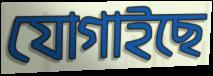
যোগাইছে